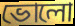
ভোলো